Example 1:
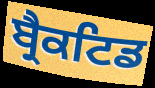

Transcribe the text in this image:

ਬ੍ਰੈਕਟਿਡ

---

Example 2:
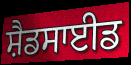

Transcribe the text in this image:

ਸ਼ੈਡਸਾਈਡ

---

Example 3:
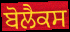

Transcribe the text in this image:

ਬੋਲੈਕਸ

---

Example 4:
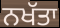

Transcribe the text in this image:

ਨਖੱਤਾ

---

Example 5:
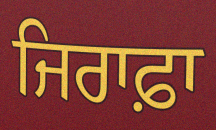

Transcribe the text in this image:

ਜਿਰਾਫ਼ਾ